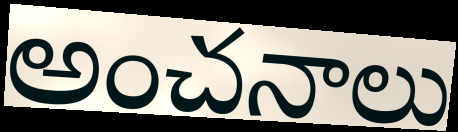
అంచనాలు